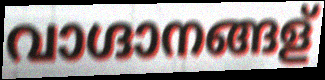
വാഗ്ദാനങ്ങള്